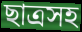
ছাত্রসহ